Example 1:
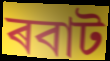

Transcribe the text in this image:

ৰবাট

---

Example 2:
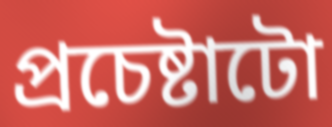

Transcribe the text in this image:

প্ৰচেষ্টাটো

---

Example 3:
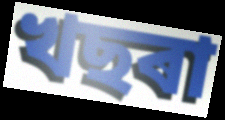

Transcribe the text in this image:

খছৰা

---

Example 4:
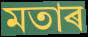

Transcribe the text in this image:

মতাৰ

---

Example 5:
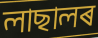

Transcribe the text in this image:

লাছালৰ